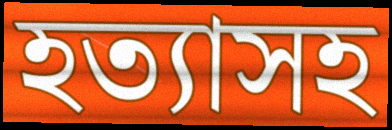
হত্যাসহ